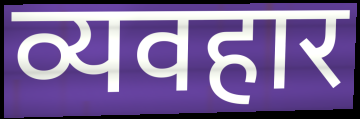
व्यवहार